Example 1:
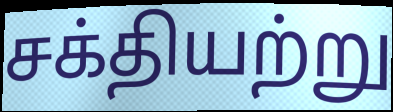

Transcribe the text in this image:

சக்தியற்று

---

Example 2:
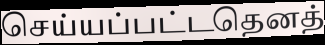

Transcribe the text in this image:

செய்யப்பட்டதெனத்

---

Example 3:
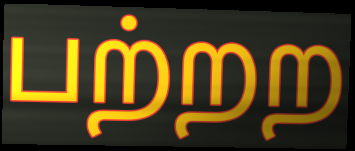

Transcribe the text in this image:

பற்றற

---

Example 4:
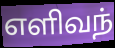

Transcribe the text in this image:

எளிவந்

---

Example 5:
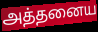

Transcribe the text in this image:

அத்தனைய